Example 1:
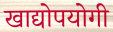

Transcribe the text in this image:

खाद्योपयोगी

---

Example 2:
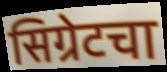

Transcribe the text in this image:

सिग्रेटचा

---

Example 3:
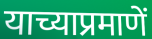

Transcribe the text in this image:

याच्याप्रमाणें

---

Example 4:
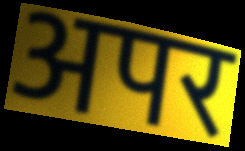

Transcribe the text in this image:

अपर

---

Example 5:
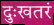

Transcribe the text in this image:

दुःखतरं